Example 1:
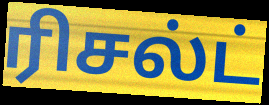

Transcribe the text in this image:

ரிசல்ட்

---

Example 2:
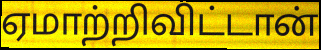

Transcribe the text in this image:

ஏமாற்றிவிட்டான்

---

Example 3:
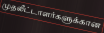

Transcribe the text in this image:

முதலீட்டாளர்களுக்கான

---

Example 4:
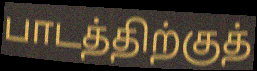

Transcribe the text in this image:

பாடத்திற்குத்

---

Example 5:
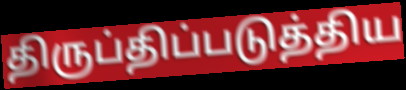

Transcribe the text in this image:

திருப்திப்படுத்திய